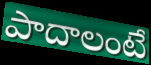
పాదాలంటే